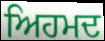
ਅਿਹਮਦ